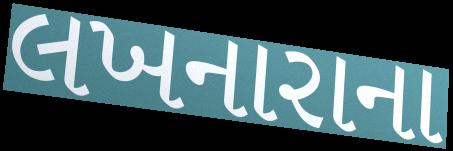
લખનારાના